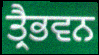
ਤ੍ਰੈਭਵਨ